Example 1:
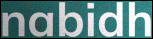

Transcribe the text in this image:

nabidh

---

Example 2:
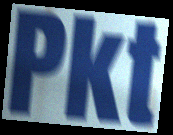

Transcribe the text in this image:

Pkt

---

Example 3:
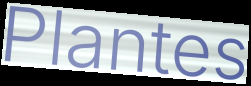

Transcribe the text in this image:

Plantes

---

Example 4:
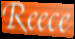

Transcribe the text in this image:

Reece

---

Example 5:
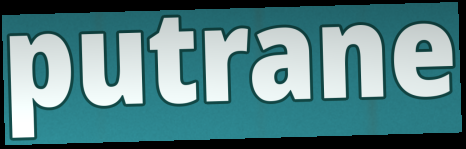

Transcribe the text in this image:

putrane